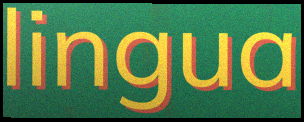
lingua